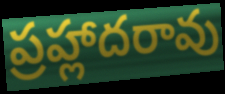
ప్రహ్లాదరావు